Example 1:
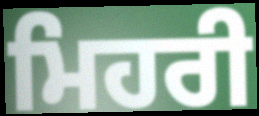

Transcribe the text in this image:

ਮਿਹਰੀ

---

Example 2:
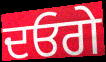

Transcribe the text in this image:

ਦਓਗੇ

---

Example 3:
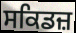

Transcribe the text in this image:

ਸਕਿਡਜ਼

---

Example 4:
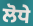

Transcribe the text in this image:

ਲੋਧੇ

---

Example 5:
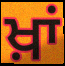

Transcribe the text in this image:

ਖ਼ਾਂ